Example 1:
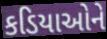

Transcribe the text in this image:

કડિયાઓને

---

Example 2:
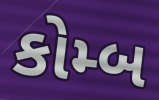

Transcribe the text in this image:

કોમ્બ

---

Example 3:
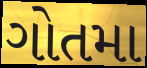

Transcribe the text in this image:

ગોતમા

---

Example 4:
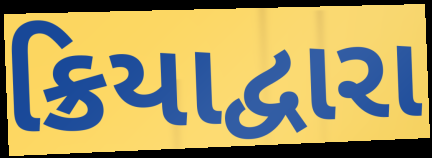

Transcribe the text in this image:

ક્રિયાદ્વારા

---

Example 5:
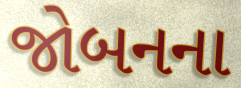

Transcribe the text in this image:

જોબનના